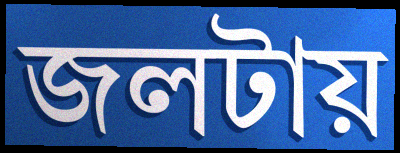
জলটায়